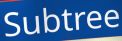
Subtree